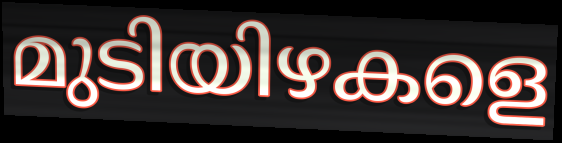
മുടിയിഴകളെ